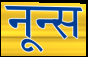
नून्स